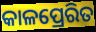
କାଳପ୍ରେରିତ